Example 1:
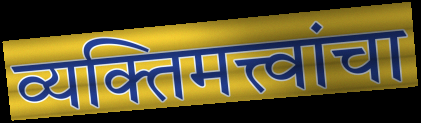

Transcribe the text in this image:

व्यक्तिमत्त्वांचा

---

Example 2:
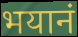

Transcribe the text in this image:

भयानं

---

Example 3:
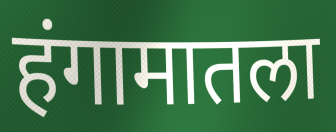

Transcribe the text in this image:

हंगामातला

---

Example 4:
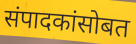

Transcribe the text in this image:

संपादकांसोबत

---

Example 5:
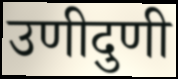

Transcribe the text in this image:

उणीदुणी